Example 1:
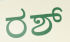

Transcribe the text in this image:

ರಶ್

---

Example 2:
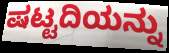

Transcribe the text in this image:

ಷಟ್ಟದಿಯನ್ನು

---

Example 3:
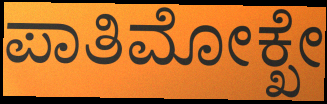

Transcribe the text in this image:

ಪಾತಿಮೋಕ್ಖೇ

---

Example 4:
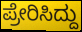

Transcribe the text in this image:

ಪ್ರೇರಿಸಿದ್ದು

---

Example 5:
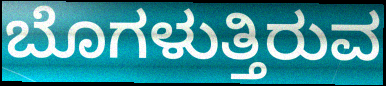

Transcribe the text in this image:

ಬೊಗಳುತ್ತಿರುವ